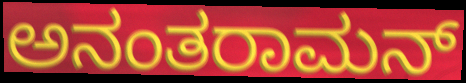
ಅನಂತರಾಮನ್